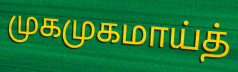
முகமுகமாய்த்